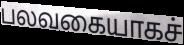
பலவகையாகச்